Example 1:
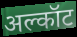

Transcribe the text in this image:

अल्कॉट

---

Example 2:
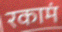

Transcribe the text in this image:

रकामं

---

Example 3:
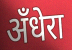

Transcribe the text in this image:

अँधेरा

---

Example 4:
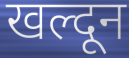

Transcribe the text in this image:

खल्दून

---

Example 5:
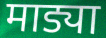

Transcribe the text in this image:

माड्या